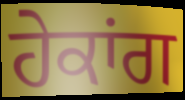
ਹੇਕਾਂਗ